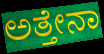
ಅತ್ತೇನಾ